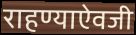
राहण्याऐवजी